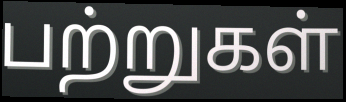
பற்றுகள்